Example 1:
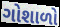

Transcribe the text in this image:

ગોશાળો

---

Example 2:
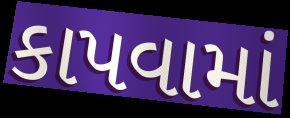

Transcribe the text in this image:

કાપવામાં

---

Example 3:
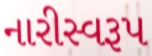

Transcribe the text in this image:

નારીસ્વરૂપ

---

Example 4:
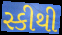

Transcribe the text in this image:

સ્કીથી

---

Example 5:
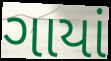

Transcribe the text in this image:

ગાયાં